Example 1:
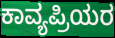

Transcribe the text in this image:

ಕಾವ್ಯಪ್ರಿಯರ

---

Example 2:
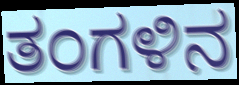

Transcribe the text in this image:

ತಂಗಳಿನ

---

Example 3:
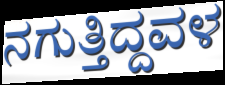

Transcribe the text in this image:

ನಗುತ್ತಿದ್ದವಳ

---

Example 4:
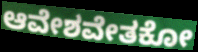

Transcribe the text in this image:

ಆವೇಶವೇತಕೋ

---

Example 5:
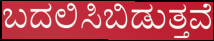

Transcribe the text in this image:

ಬದಲಿಸಿಬಿಡುತ್ತವೆ